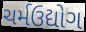
ચર્મઉદ્યોગ